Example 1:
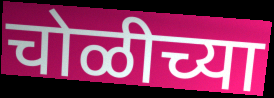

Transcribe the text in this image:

चोळीच्या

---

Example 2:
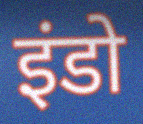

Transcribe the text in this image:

इंडो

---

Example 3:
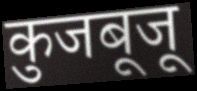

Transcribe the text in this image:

कुजबूजू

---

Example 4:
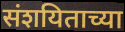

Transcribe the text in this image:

संशयिताच्या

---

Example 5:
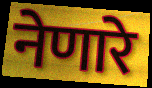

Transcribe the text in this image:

नेणारे